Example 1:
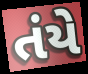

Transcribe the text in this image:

તંયે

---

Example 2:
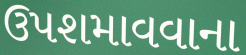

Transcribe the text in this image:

ઉપશમાવવાના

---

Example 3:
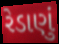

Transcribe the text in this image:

રેડાણું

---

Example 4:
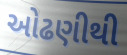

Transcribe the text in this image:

ઓઢણીથી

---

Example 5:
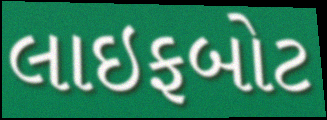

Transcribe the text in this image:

લાઇફબોટ